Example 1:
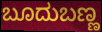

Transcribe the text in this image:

ಬೂದುಬಣ್ಣ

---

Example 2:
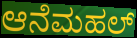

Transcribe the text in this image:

ಆನೆಮಹಲ್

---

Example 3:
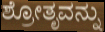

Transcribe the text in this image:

ಶ್ರೋತೃವನ್ನು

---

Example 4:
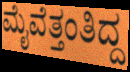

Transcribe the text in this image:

ಮೈವೆತ್ತಂತಿದ್ದ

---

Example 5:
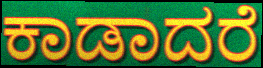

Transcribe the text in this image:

ಕಾಡಾದರೆ